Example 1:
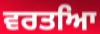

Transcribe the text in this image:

ਵਰਤਆਿ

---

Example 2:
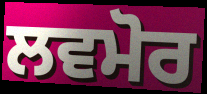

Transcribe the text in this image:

ਲਵਮੋਰ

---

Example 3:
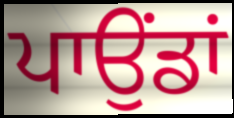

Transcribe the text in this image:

ਪਾਉਂਡਾਂ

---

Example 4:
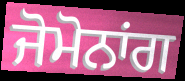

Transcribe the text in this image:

ਜੋਮੋਨਾਂਗ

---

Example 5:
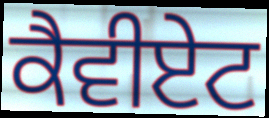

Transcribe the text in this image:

ਕੈਵੀਏਟ